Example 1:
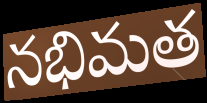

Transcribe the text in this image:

నభిమత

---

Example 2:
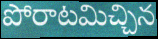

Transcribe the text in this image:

పోరాటమిచ్చిన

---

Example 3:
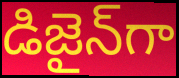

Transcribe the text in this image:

డిజైన్‌గా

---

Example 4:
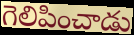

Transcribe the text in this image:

గెలిపించాడు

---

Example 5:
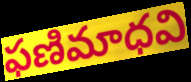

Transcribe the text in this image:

ఫణిమాధవి